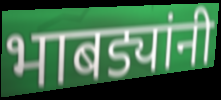
भाबड्यांनी